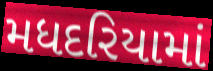
મધદરિયામાં